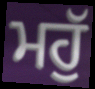
ਮਹੁੱ